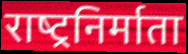
राष्ट्रनिर्माता